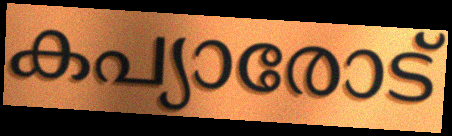
കപ്യാരോട്